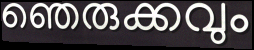
ഞെരുക്കവും